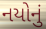
નયોનું